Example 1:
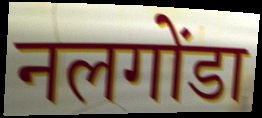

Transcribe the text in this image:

नलगोंडा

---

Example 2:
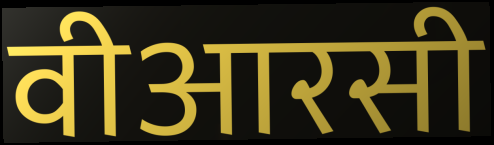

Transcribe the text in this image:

वीआरसी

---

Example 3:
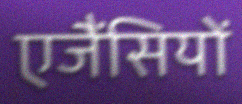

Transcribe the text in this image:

एजैंसियों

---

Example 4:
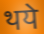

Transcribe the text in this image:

थये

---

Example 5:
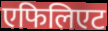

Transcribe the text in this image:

एफिलिएट